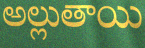
అల్లుతాయి